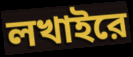
লখাইরে